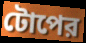
টোপের